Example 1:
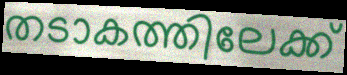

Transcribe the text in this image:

തടാകത്തിലേക്ക്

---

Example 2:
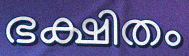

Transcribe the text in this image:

ഭക്ഷിതം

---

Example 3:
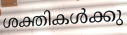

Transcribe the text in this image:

ശക്തികൾക്കു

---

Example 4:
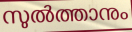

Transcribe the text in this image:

സുൽത്താനും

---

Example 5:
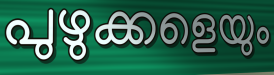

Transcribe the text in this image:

പുഴുക്കളെയും